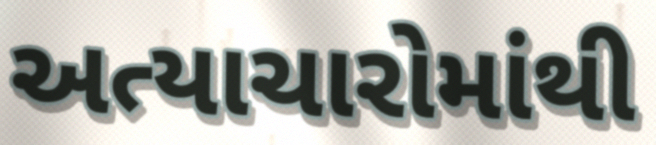
અત્યાચારોમાંથી